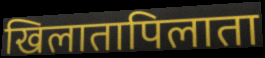
खिलातापिलाता